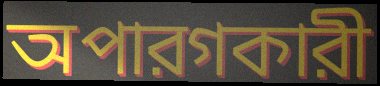
অপারগকারী